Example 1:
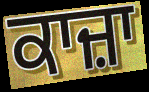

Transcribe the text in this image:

ਕਾਜ਼ਾ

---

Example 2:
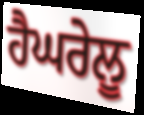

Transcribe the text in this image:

ਹੈਘਰੇਲੂ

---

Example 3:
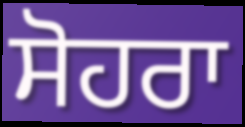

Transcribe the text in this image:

ਸੋਹਰਾ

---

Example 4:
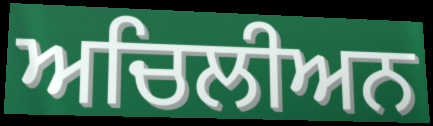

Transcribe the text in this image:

ਅਚਿਲੀਅਨ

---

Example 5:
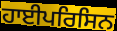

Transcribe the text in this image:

ਹਾਈਪਰਿਸਿਨ